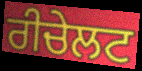
ਰੀਚੇਲਟ